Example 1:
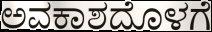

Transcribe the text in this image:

ಅವಕಾಶದೊಳಗೆ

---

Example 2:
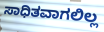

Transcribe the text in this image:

ಸಾಧಿತವಾಗಲಿಲ್ಲ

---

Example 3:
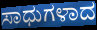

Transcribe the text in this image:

ಸಾಧುಗಳಾದ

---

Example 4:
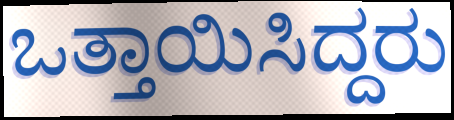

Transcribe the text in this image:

ಒತ್ತಾಯಿಸಿದ್ದರು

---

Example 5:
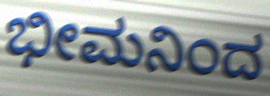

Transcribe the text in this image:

ಭೀಮನಿಂದ